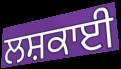
ਲਸ਼ਕਾਈ